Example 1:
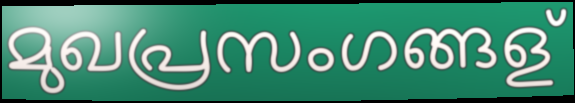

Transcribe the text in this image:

മുഖപ്രസംഗങ്ങള്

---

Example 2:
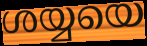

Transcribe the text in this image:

ശയ്യയെ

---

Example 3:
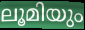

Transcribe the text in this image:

ലൂമിയും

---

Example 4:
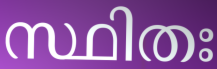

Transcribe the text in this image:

സ്ഥിതഃ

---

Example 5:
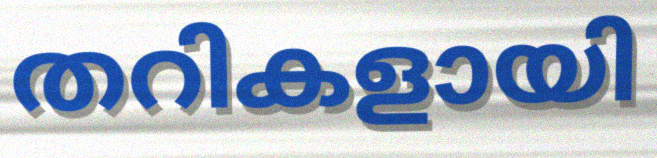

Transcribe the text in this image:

തറികളായി